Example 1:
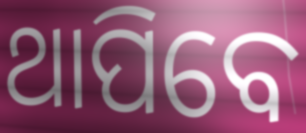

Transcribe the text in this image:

ଥାପିବେ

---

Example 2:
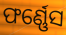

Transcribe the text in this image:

ଫର୍ଣ୍ଣେସ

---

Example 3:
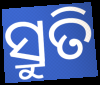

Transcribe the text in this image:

ସ୍ରୁତି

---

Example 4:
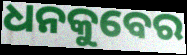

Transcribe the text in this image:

ଧନକୁବେର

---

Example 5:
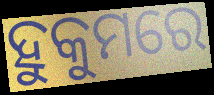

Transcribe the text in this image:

ହୁକୁମରେ